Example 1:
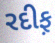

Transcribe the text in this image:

રદીફ઼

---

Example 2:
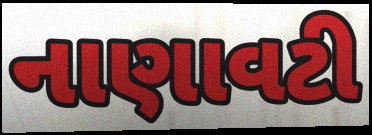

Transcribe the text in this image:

નાણાવટી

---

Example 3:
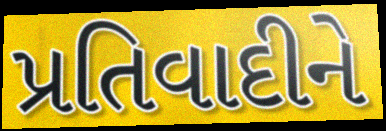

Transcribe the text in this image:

પ્રતિવાદીને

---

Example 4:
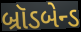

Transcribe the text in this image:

બ્રૉડબેન્ડ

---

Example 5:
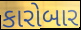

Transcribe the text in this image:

કારોબાર